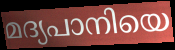
മദ്യപാനിയെ